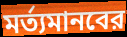
মর্ত্যমানবের